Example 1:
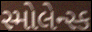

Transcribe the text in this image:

સ્મોલેન્સ્ક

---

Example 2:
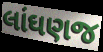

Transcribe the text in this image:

લાંઘણજ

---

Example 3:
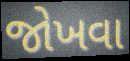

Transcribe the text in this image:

જોખવા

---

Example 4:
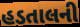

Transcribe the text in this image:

હડતાલની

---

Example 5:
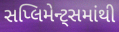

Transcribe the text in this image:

સપ્લિમેન્ટ્સમાંથી